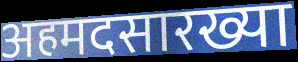
अहमदसारख्या